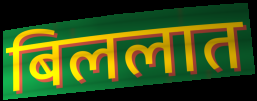
बिललात